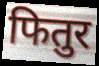
फितुर